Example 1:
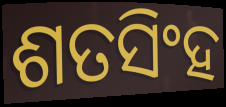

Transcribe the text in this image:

ଶତସିଂହ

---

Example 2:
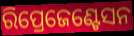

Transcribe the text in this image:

ରିପ୍ରେଜେଣ୍ଟେସନ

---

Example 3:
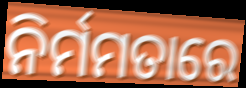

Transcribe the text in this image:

ନିର୍ମମତାରେ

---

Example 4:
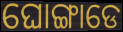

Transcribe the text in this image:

ଘୋଙ୍ଗାଡେ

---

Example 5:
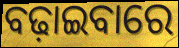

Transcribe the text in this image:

ବଢ଼ାଇବାରେ